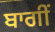
ਬਾਗੀਂ